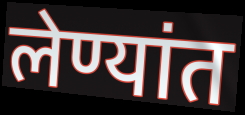
लेण्यांत